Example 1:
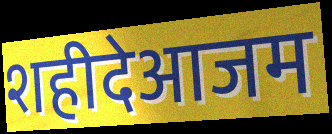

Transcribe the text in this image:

शहीदेआजम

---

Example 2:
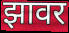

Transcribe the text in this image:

झावर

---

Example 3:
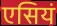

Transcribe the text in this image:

एसियं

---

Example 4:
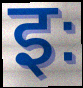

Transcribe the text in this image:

इः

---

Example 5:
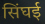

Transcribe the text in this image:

सिंघई